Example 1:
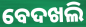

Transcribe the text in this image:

ବେଦଖଲି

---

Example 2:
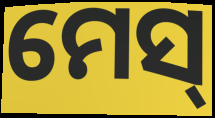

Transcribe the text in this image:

ମେସ୍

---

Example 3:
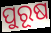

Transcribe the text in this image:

ପୁରୂଷ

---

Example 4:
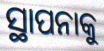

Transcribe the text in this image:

ସ୍ଥାପନାକୁ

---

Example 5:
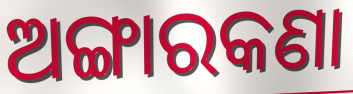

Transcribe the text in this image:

ଅଙ୍ଗାରକଣା